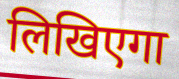
लिखिएगा